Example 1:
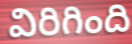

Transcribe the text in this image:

విరిగింది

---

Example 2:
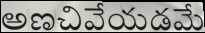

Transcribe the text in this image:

అణచివేయడమే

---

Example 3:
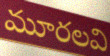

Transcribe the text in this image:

మూరలవి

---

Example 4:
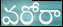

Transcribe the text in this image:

వరోరా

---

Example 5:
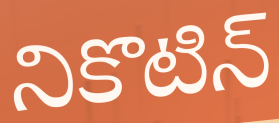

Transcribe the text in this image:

నికొటిన్